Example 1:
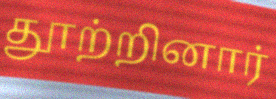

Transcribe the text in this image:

தூற்றினார்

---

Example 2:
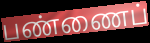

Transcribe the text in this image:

பண்ணைப்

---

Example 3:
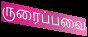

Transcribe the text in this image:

ருரைப்பவை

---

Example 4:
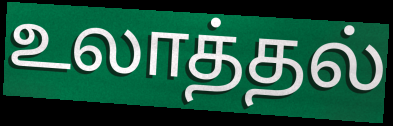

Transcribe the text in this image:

உலாத்தல்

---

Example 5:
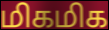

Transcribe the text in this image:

மிகமிக